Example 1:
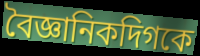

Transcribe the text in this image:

বৈজ্ঞানিকদিগকে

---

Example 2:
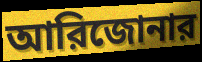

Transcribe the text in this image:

আরিজোনার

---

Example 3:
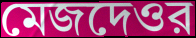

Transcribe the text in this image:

মেজদেওর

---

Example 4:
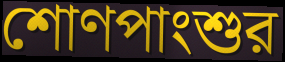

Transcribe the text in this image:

শোণপাংশুর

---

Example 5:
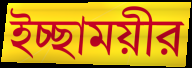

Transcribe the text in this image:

ইচ্ছাময়ীর